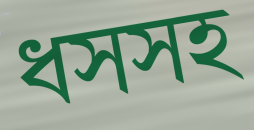
ধসসহ